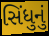
સિંધુનું